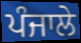
ਪੰਜਾਲੇ